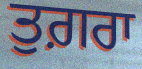
ਤੁਗ਼ਰਾ